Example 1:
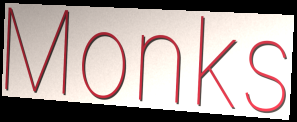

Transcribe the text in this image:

Monks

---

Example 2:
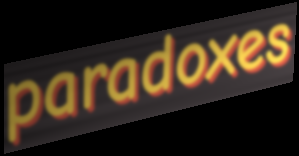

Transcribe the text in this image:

paradoxes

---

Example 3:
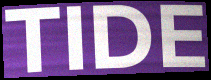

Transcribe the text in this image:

TIDE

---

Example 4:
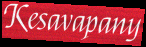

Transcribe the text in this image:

Kesavapany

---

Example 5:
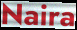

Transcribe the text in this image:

Naira